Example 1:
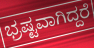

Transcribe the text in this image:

ಭ್ರಷ್ಟವಾಗಿದ್ದರೆ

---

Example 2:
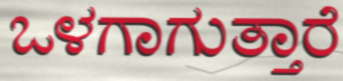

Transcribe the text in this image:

ಒಳಗಾಗುತ್ತಾರೆ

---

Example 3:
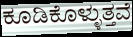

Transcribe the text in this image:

ಕೂಡಿಕೊಳ್ಳುತ್ತವೆ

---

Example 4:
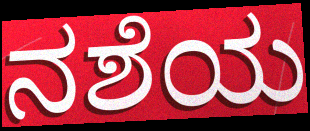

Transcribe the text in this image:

ನಶೆಯ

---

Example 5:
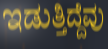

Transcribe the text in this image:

ಇಡುತ್ತಿದ್ದೆವು